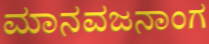
ಮಾನವಜನಾಂಗ